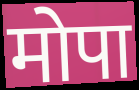
मोपा